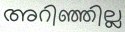
അറിഞ്ഞില്ല